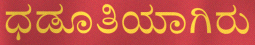
ಧಡೂತಿಯಾಗಿರು